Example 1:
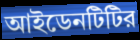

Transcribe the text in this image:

আইডেনটিটির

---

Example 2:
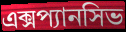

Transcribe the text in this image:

এক্সপ্যানসিভ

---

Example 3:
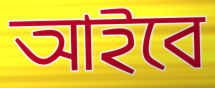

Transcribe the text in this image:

আইবে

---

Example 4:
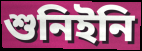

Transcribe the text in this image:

শুনিইনি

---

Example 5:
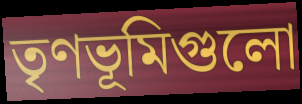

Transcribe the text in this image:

তৃণভূমিগুলো